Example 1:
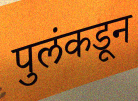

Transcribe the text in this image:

पुलंकडून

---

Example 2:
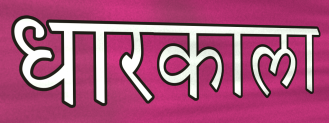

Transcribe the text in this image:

धारकाला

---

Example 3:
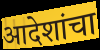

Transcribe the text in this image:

आदेशांचा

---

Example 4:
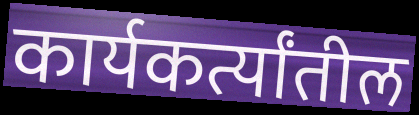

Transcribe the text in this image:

कार्यकर्त्यांतील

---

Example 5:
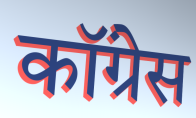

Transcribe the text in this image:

कॉंग्रेस